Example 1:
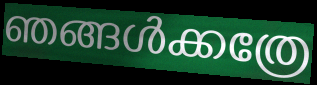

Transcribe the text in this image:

ഞങ്ങൾക്കത്രേ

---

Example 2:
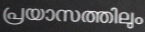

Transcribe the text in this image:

പ്രയാസത്തിലും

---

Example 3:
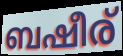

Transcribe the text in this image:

ബഷീര്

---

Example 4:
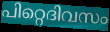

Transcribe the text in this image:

പിറ്റെദിവസം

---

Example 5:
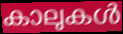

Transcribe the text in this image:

കാലുകൾ